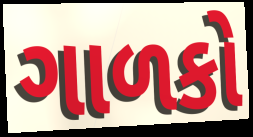
ગાળકો